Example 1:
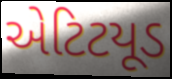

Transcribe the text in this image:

એટિટયૂડ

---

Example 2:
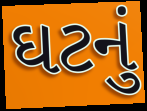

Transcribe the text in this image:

ઘટનું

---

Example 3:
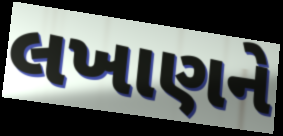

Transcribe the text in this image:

લખાણને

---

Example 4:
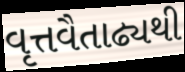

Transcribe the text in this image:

વૃત્તવૈતાઢ્યથી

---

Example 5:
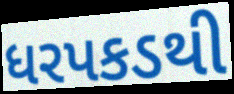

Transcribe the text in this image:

ધરપકડથી